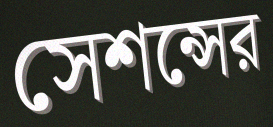
সেশন্সের